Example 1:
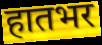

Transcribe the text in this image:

हातभर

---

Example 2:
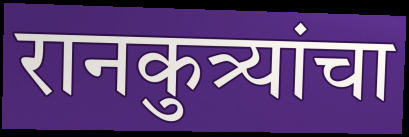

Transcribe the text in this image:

रानकुत्र्यांचा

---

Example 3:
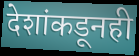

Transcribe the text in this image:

देशांकडूनही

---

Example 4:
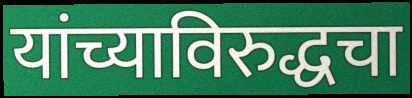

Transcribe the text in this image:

यांच्याविरुद्धचा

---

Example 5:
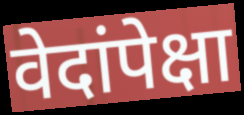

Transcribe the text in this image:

वेदांपेक्षा